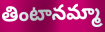
తింటానమ్మా